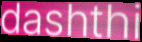
dashthi